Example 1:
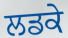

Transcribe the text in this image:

ਲਡਕੇ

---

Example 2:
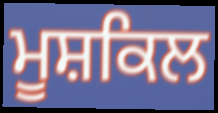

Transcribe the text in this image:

ਮੂਸ਼ਕਿਲ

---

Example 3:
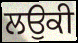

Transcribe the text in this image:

ਲਉਕੀ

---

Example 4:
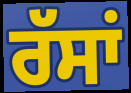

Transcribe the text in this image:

ਰੱਸਾਂ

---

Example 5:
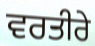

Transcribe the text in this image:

ਵਰਤੀਰੇ